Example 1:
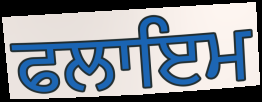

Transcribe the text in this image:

ਫਲਾਇਮ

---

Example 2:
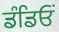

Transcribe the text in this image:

ਡੰਡਿਓਂ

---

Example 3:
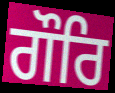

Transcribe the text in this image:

ਗੌਰਿ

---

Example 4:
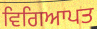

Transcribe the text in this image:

ਵਿਗਿਆਪਤ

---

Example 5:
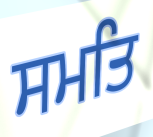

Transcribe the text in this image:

ਸਮਤਿ